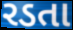
રડતા